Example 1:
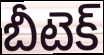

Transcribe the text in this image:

బీటెక్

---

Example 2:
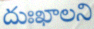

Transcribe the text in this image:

దుఃఖాలని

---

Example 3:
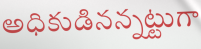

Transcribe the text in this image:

అధికుడినన్నట్టుగా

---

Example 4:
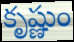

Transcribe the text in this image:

కృష్ణుం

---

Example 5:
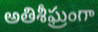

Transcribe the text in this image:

అతిశీఘ్రంగా